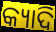
କ୍ୟାଦି